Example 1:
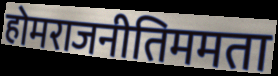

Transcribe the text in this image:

होमराजनीतिममता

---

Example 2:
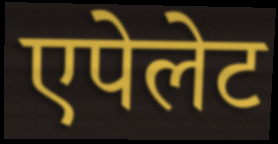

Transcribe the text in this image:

एपेलेट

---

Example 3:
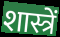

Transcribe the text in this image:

शास्त्रें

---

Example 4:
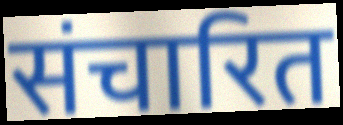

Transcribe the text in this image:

संचारित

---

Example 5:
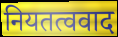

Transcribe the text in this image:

नियतत्ववाद